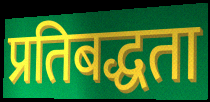
प्रतिबद्धता